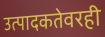
उत्पादकतेवरही